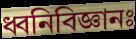
ধ্বনিবিজ্ঞানঃ